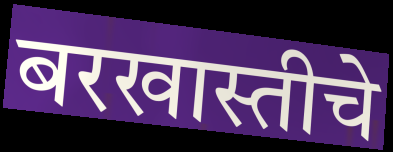
बरखास्तीचे